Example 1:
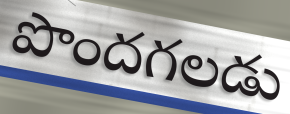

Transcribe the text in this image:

పొందగలడు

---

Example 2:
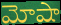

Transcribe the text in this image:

మోషా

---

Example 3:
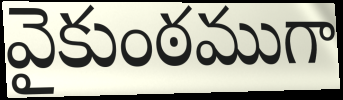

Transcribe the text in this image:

వైకుంఠముగా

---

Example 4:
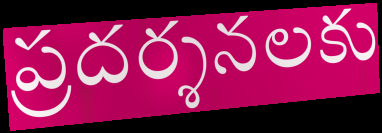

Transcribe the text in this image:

ప్రదర్శనలకు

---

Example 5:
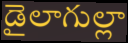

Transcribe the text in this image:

డైలాగుల్లా